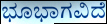
ಭೂಭಾಗವಿದೆ